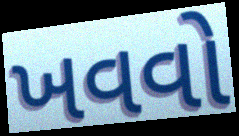
ખવવો